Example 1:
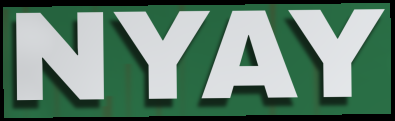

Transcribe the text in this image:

NYAY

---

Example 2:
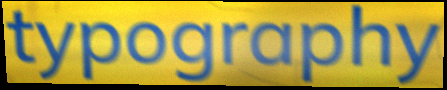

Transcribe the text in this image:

typography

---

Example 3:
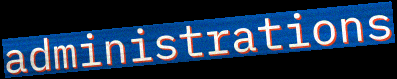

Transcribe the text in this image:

administrations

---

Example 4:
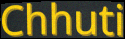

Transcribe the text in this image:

Chhuti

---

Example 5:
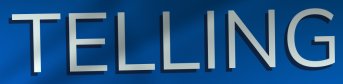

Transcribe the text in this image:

TELLING